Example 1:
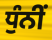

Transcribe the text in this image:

ਧੁੰਨੀਂ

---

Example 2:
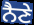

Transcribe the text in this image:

ਨੈਣੇ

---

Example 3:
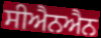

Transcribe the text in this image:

ਸੀਐਨਐਨ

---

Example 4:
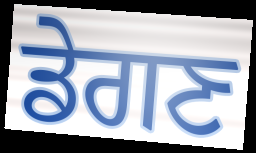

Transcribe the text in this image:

ਡੇਗਣ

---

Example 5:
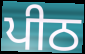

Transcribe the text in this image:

ਪੀਠ